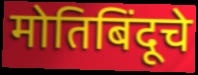
मोतिबिंदूचे